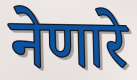
नेणारे